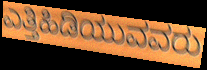
ಎತ್ತಿಹಿಡಿಯುವವರು